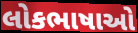
લોકભાષાઓ